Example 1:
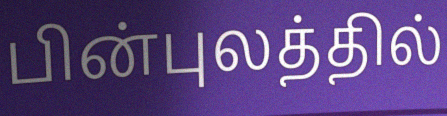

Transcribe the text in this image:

பின்புலத்தில்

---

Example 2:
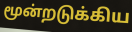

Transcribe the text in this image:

மூன்றடுக்கிய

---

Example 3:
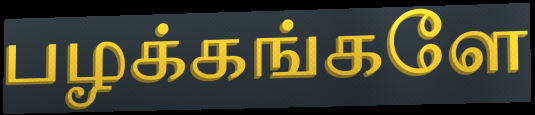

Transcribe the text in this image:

பழக்கங்களே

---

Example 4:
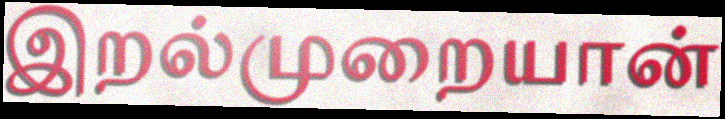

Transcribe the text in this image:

இறல்முறையான்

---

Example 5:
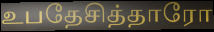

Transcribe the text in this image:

உபதேசித்தாரோ